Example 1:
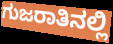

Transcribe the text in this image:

ಗುಜರಾತಿನಲ್ಲಿ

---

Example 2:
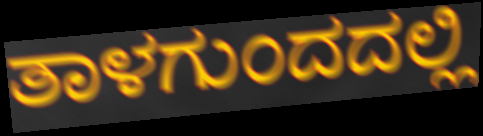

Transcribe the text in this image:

ತಾಳಗುಂದದಲ್ಲಿ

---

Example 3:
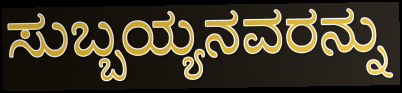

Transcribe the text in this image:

ಸುಬ್ಬಯ್ಯನವರನ್ನು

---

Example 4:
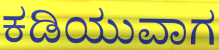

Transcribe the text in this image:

ಕಡಿಯುವಾಗ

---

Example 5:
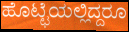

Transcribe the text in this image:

ಹೊಟ್ಟೆಯಲ್ಲಿದ್ದರೂ